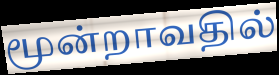
மூன்றாவதில்